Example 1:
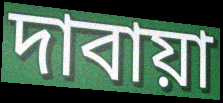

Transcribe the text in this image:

দাবায়া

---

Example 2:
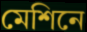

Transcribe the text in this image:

মেশিনে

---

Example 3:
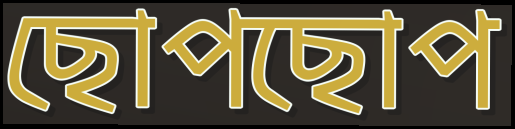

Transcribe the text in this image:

ছোপছোপ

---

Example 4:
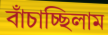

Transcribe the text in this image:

বাঁচাচ্ছিলাম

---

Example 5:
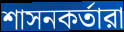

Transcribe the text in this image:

শাসনকর্তারা